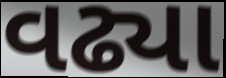
વઢ્યા